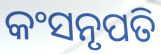
କଂସନୃପତି